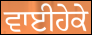
ਵਾਈਹੇਕੇ